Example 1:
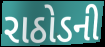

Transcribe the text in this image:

રાઠોડની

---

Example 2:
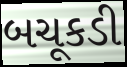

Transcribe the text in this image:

બચૂકડી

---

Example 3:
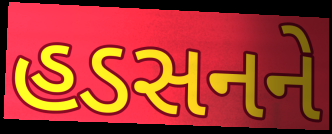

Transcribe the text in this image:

હડસનને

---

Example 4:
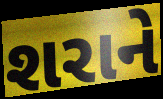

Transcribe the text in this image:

શરાને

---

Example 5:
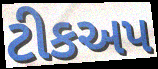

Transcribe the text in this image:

ટીકઅપ